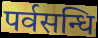
पर्वसन्धि